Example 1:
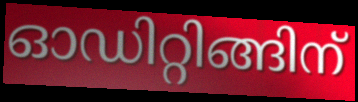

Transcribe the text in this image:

ഓഡിറ്റിങ്ങിന്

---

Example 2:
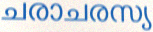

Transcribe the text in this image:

ചരാചരസ്യ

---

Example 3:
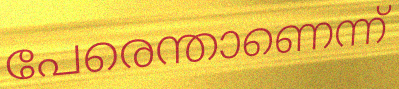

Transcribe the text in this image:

പേരെന്താണെന്ന്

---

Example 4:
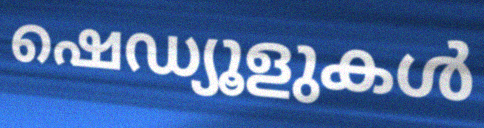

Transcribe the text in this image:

ഷെഡ്യൂളുകൾ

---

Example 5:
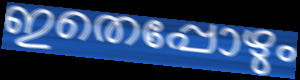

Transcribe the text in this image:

ഇതെപ്പോഴും